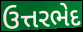
ઉત્તરભેદ